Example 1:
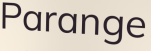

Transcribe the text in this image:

Parange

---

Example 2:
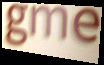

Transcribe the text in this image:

gme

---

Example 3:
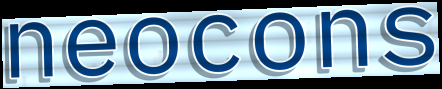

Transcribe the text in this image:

neocons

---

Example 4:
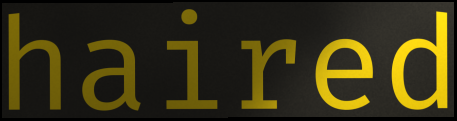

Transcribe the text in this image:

haired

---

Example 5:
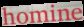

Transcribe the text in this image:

homine